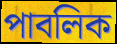
পাবলিক